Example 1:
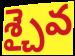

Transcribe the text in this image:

శ్చైవ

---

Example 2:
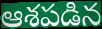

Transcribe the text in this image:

ఆశపడిన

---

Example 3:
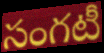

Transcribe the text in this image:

సంగటీ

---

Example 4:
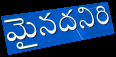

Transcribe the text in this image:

మైనదనిరి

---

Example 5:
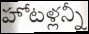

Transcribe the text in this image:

హోటళ్లన్నీ